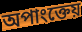
অপাংক্তেয়